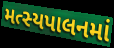
મત્સ્યપાલનમાં